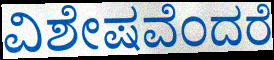
ವಿಶೇಷವೆಂದರೆ